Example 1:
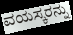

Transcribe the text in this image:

ವಯಸ್ಕರನ್ನು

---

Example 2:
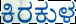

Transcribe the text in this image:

ಕಿರಕುಳ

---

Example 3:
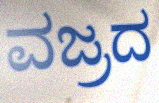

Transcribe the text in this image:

ವಜ್ರದ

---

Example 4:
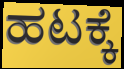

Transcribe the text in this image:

ಹಟಕ್ಕೆ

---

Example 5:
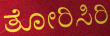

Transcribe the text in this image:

ತೋರಿಸಿರಿ